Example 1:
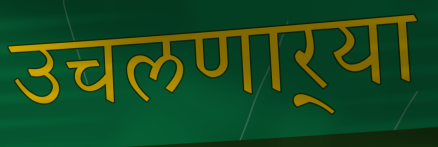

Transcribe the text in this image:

उचलणार्या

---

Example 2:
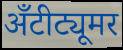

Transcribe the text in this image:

अँटीट्यूमर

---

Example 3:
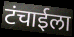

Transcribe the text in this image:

टंचाईला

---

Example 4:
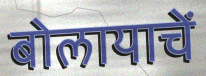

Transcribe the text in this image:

बोलायाचें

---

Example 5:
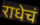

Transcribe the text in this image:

राधेचं